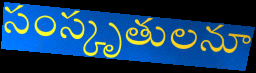
సంస్కృతులనూ